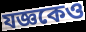
যজ্ঞকেও